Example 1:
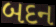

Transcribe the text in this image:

બદન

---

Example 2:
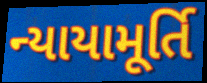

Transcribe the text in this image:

ન્યાયામૂર્તિ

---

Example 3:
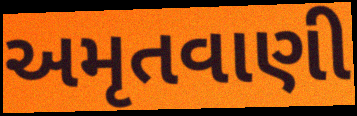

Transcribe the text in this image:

અમૃતવાણી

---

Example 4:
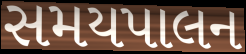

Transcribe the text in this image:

સમયપાલન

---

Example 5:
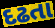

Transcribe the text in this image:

દઢતા